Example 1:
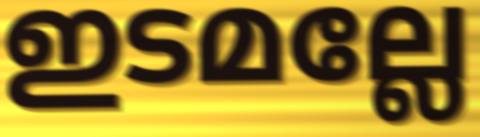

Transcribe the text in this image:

ഇടമല്ലേ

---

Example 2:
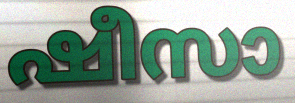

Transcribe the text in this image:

ഷീസാ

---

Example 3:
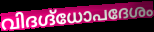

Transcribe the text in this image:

വിദഗ്ദ്ധോപദേശം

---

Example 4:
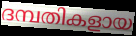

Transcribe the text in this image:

ദമ്പതികളായ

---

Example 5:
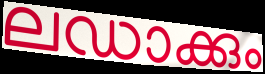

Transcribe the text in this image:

ലഡാക്കും